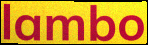
lambo